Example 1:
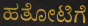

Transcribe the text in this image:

ಹತೋಟಿಗೆ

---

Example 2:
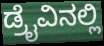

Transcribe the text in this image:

ಡ್ರೈವಿನಲ್ಲಿ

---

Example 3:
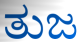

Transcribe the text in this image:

ತುಜ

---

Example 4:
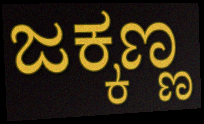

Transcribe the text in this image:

ಜಕ್ಕಣ್ಣ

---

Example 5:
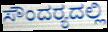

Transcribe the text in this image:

ಸೌಂದರ‍್ಯದಲ್ಲಿ